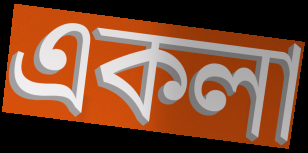
একলা